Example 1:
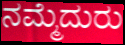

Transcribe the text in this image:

ನಮ್ಮೆದುರು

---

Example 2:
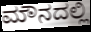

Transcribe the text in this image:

ಮೌನದಲ್ಲಿ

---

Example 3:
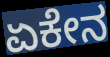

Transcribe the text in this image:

ಏಕೇನ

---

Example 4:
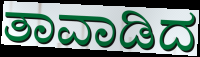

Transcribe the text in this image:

ತಾವಾಡಿದ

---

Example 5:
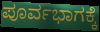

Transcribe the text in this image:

ಪೂರ್ವಭಾಗಕ್ಕೆ